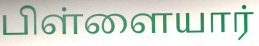
பிள்ளையார்